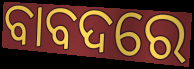
ବାବଦରେ